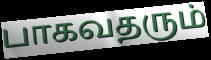
பாகவதரும்